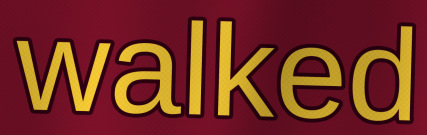
walked